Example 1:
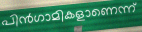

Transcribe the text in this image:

പിൻഗാമികളാണെന്ന്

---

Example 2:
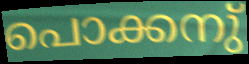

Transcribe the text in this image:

പൊക്കനു്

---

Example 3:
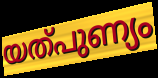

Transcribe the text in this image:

യത്പുണ്യം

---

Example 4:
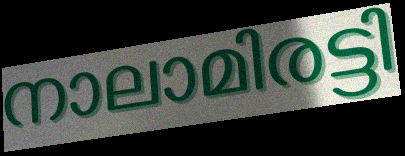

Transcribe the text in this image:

നാലാമിരട്ടി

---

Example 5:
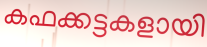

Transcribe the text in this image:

കഫക്കട്ടകളായി